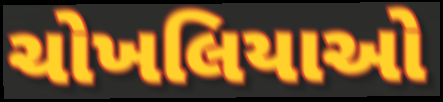
ચોખલિયાઓ